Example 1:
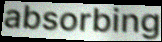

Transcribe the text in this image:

absorbing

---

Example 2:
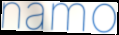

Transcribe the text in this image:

namo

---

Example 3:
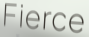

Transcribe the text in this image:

Fierce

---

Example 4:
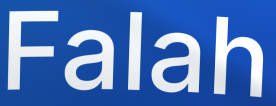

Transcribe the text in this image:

Falah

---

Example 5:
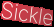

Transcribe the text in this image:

Sickle